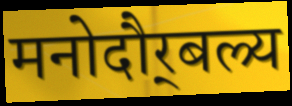
मनोदौर्बल्य